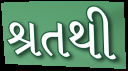
શ્રતથી